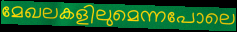
മേഖലകളിലുമെന്നപോലെ